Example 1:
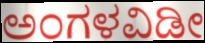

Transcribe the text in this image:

ಅಂಗಳವಿಡೀ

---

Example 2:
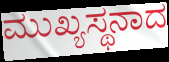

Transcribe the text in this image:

ಮುಖ್ಯಸ್ಥನಾದ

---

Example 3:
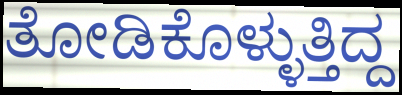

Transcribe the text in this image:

ತೋಡಿಕೊಳ್ಳುತ್ತಿದ್ದ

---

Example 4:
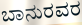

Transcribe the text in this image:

ಬಾನುರವರ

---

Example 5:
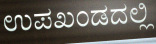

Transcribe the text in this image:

ಉಪಖಂಡದಲ್ಲಿ